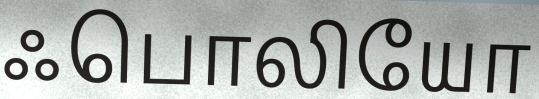
ஃபொலியோ